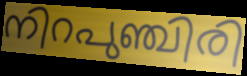
നിറപുഞ്ചിരി